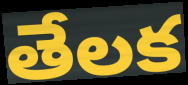
తేలక